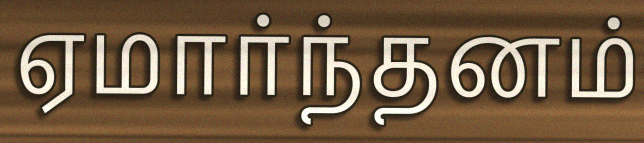
ஏமார்ந்தனம்